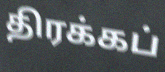
திரக்கப்